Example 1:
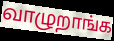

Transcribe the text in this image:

வாழுறாங்க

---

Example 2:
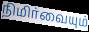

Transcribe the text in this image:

நிமிர்வையும்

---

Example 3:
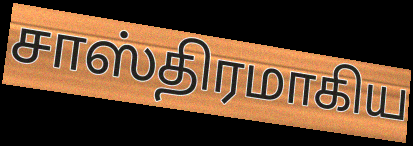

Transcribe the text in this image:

சாஸ்திரமாகிய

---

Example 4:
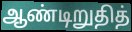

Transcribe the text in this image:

ஆண்டிறுதித்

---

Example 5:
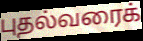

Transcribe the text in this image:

புதல்வரைக்